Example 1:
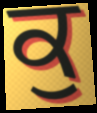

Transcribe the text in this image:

ਕੁ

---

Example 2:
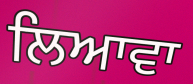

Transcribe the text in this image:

ਲਿਆਵਾ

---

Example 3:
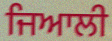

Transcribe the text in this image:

ਜਿਆਲੀ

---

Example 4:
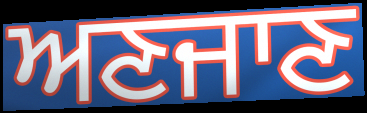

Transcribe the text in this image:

ਅਣਜਾਣ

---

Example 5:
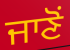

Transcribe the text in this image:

ਜਾਣੋਂ